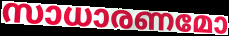
സാധാരണമോ